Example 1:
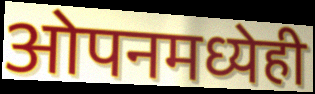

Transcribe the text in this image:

ओपनमध्येही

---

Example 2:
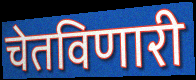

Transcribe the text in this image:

चेतविणारी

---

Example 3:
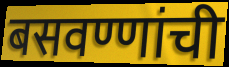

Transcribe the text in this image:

बसवण्णांची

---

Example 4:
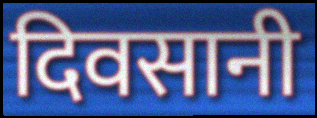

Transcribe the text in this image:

दिवसानी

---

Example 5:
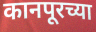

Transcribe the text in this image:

कानपूरच्या